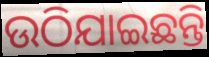
ଉଠିଯାଇଛନ୍ତି